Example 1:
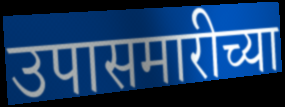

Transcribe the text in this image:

उपासमारीच्या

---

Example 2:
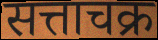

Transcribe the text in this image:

सत्ताचक्र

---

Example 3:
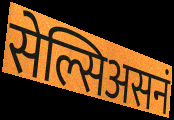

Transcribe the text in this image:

सेल्सिअसनं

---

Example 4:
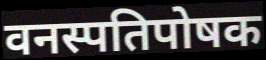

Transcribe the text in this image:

वनस्पतिपोषक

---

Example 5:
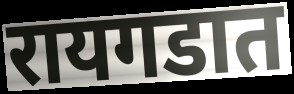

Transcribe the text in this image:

रायगडात